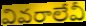
వివరాలేవీ